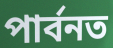
পাৰ্বনত